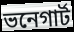
ভনেগার্ট